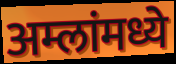
अम्लांमध्ये